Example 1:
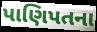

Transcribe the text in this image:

પાણિપતના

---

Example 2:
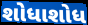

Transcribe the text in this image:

શોધાશોધ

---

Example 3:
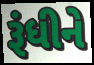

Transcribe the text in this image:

રૂંધીને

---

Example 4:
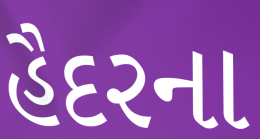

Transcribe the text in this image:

હૈદરના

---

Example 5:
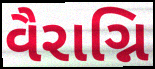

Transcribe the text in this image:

વૈરાગ્નિ